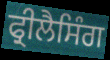
ਫ੍ਰੀਲੈਸਿੰਗ